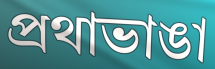
প্রথাভাঙা